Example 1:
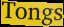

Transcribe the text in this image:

Tongs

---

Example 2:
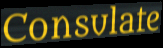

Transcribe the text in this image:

Consulate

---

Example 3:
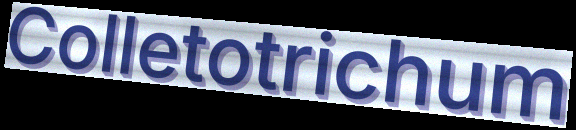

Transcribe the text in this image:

Colletotrichum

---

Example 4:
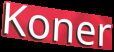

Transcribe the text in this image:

Koner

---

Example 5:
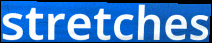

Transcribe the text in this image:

stretches